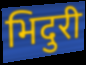
भिदुरी